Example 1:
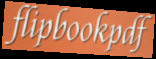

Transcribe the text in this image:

flipbookpdf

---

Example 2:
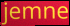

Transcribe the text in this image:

jemne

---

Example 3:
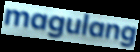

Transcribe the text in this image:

magulang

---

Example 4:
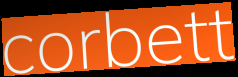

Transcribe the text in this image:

corbett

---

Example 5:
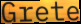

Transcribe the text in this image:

Grete